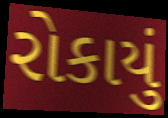
રોકાયું